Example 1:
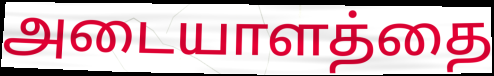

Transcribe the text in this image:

அடையாளத்தை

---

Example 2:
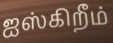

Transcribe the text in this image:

ஐஸ்கிறீம்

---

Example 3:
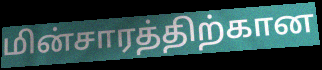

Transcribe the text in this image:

மின்சாரத்திற்கான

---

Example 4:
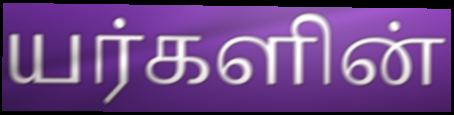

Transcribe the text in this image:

யர்களின்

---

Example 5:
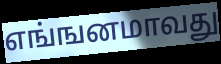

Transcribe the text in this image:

எங்ஙனமாவது